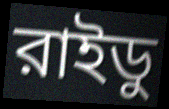
রাইডু